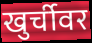
खुर्चीवर